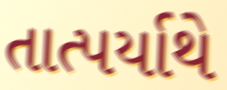
તાત્પર્યાથે